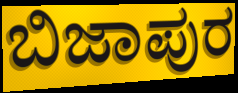
ಬಿಜಾಪುರ